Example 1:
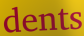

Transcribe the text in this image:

dents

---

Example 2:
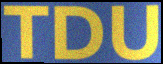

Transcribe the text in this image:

TDU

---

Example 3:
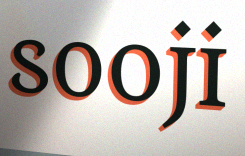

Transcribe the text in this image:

sooji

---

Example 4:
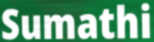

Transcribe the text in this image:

Sumathi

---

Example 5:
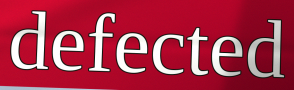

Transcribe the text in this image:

defected